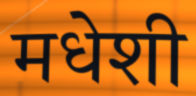
मधेशी